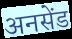
अनसेंड